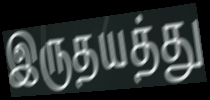
இருதயத்து